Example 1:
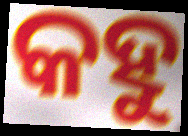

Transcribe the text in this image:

କହୁ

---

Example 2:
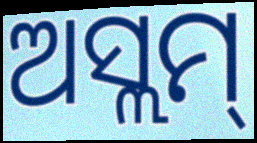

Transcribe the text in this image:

ଅସ୍ଲମ୍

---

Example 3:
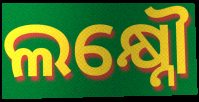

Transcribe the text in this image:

ଲକ୍ଷ୍ନୌ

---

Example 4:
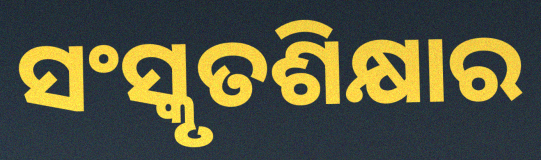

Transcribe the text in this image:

ସଂସ୍କୃତଶିକ୍ଷାର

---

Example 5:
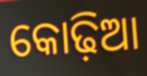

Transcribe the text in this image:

କୋଢ଼ିଆ